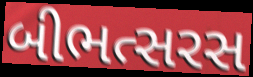
બીભત્સરસ